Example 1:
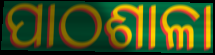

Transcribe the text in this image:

ପାଠଶାଳା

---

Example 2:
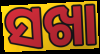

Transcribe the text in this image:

ସଖା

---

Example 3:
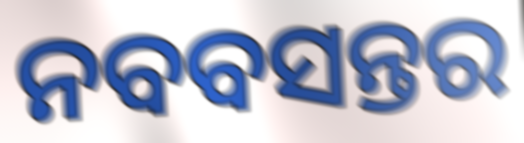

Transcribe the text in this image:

ନବବସନ୍ତର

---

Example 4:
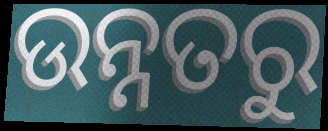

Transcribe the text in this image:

ଉନ୍ନତରୁ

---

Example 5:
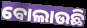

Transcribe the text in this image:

ବୋଲାଉଛି